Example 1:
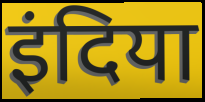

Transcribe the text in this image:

इंदिया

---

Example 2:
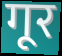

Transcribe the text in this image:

गूर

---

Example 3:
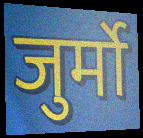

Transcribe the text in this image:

जुर्मो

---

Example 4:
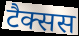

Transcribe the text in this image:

टैक्सस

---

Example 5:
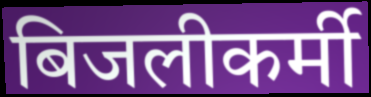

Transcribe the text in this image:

बिजलीकर्मी